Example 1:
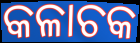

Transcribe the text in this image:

କଳାଚକ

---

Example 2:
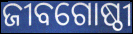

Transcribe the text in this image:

ଜୀବଗୋଷ୍ଠୀ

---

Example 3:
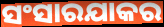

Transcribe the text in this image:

ସଂସାରଯାକର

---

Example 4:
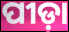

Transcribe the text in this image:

ପୀଡ଼ା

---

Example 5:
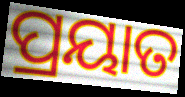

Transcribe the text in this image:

ପ୍ରୟାତ